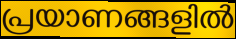
പ്രയാണങ്ങളിൽ